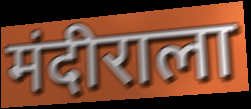
मंदीराला